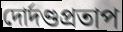
দোর্দণ্ডপ্রতাপ